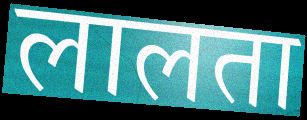
लालता